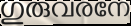
ഗുരുവരനേ